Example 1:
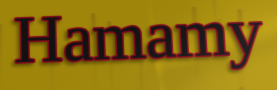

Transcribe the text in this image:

Hamamy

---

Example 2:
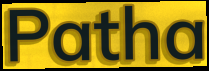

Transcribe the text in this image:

Patha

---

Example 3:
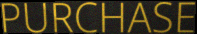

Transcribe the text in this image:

PURCHASE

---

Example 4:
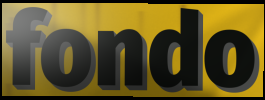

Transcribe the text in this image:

fondo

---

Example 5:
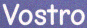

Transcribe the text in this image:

Vostro